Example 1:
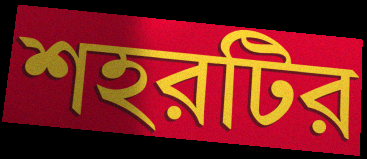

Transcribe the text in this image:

শহরটির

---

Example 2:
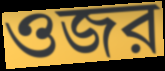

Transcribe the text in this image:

ওজর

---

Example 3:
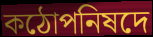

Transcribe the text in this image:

কঠোপনিষদে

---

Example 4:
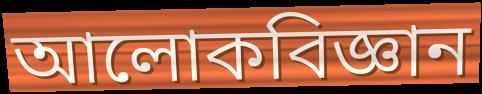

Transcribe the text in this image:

আলোকবিজ্ঞান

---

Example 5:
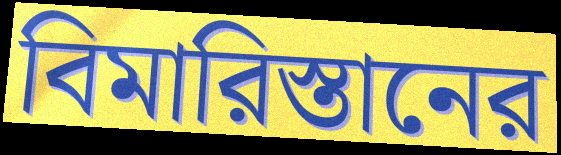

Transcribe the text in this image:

বিমারিস্তানের